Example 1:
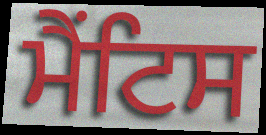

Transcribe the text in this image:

ਮੈਂਟਿਸ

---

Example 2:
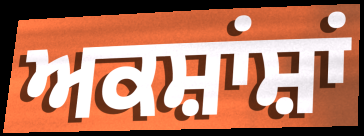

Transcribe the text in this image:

ਅਕਸ਼ਾਂਸ਼ਾਂ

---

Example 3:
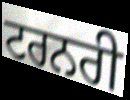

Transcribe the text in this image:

ਟਰਨਰੀ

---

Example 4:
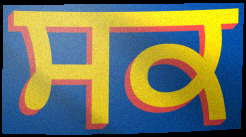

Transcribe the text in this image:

ਸਕ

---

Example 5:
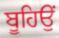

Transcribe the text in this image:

ਬੂਹਿਉਂ